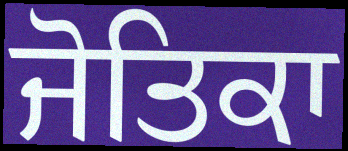
ਜੋਤਿਕਾ